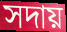
সদায়